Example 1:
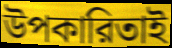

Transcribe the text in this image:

উপকারিতাই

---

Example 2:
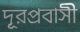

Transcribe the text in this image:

দূরপ্রবাসী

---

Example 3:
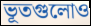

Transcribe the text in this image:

ভূতগুলোও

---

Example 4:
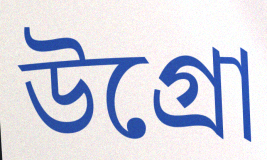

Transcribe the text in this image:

উগ্রো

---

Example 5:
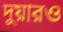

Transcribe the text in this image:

দুয়ারও